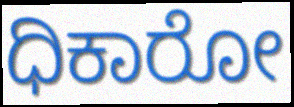
ಧಿಕಾರೋ